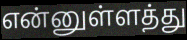
என்னுள்ளத்து